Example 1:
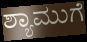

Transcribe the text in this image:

ಶ್ಯಾಮುಗೆ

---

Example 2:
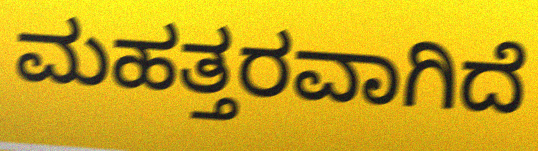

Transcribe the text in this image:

ಮಹತ್ತರವಾಗಿದೆ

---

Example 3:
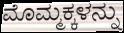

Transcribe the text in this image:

ಮೊಮ್ಮಕ್ಕಳನ್ನು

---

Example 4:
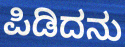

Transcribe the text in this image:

ಪಿಡಿದನು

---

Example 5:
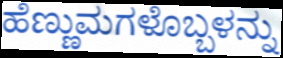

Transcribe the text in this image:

ಹೆಣ್ಣುಮಗಳೊಬ್ಬಳನ್ನು